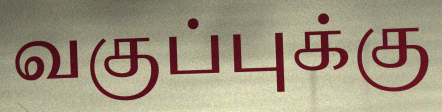
வகுப்புக்கு